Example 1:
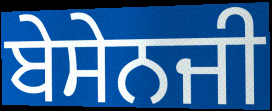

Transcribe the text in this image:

ਬੇਸੇਨਜੀ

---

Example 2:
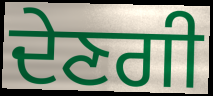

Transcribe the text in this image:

ਦੇਣਗੀ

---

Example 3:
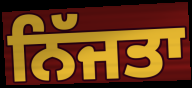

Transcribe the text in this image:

ਨਿੱਜਤਾ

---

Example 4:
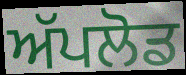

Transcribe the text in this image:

ਅੱਪਲੋਡ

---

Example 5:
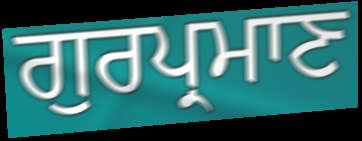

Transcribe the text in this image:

ਗੁਰਪ੍ਰਮਾਣ